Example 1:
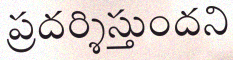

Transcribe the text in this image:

ప్రదర్శిస్తుందని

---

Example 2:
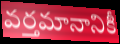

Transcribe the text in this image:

వర్తమానానికీ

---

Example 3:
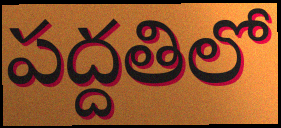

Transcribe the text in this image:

పద్దతిలో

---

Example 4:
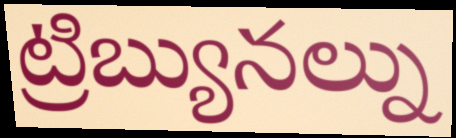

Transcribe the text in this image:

ట్రిబ్యునల్ను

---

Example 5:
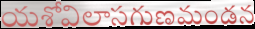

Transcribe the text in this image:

యశోవిలాసగుణమండన